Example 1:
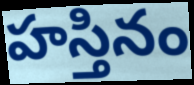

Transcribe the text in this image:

హస్తినం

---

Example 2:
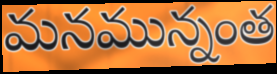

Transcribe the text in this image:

మనమున్నంత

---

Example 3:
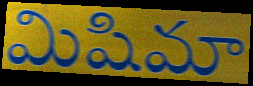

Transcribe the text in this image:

మిషిమా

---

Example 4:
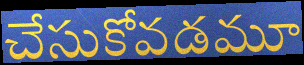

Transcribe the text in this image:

చేసుకోవడమూ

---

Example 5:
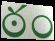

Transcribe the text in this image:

ఠం